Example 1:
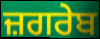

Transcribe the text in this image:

ਜ਼ਗਰੇਬ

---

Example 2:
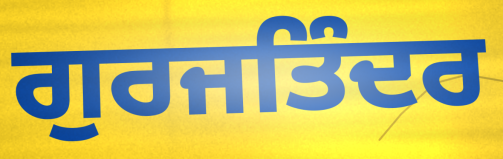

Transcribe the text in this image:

ਗੁਰਜਤਿੰਦਰ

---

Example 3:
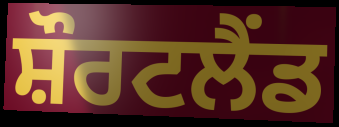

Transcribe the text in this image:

ਸ਼ੌਰਟਲੈਂਡ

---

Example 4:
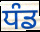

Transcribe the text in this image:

ਧੰਡ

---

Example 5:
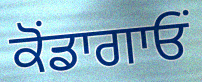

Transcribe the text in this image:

ਕੋਂਡਾਗਾਓਂ